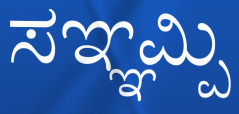
ಸಞ್ಞಮ್ಪಿ